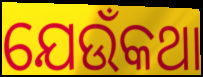
ଯେଉଁକଥା